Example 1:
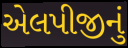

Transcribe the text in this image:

એલપીજીનું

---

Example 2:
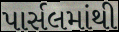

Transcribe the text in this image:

પાર્સલમાંથી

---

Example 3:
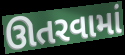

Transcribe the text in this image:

ઊતરવામાં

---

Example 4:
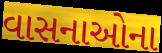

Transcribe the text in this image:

વાસનાઓના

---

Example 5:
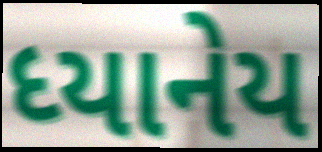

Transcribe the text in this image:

ધ્યાનેય